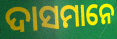
ଦାସମାନେ